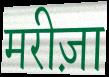
मरीज़ा